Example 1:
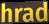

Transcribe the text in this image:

hrad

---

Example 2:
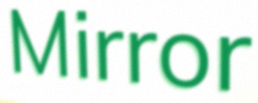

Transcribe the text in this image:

Mirror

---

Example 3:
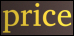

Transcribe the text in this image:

price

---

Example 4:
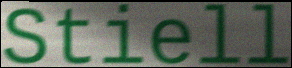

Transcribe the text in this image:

Stiell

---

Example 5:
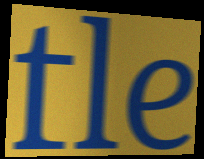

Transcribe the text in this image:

tle